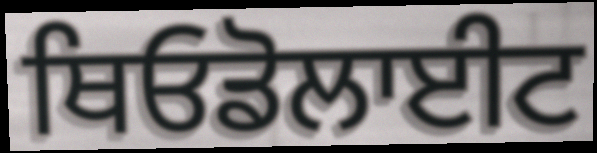
ਥਿਓਡੋਲਾਈਟ